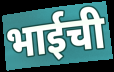
भाईची